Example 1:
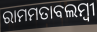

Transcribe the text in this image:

ରାମମତାବଲମ୍ବୀ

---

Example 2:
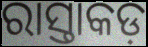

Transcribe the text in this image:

ରାସ୍ତାକଡ଼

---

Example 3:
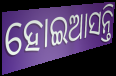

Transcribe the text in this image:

ହୋଇଆସନ୍ତି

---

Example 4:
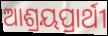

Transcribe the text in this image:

ଆଶ୍ରୟପ୍ରାର୍ଥୀ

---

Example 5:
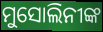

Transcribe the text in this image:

ମୁସୋଲିନୀଙ୍କ